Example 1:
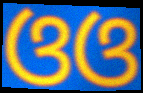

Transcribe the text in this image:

ଓଓ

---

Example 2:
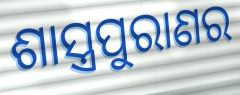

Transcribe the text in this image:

ଶାସ୍ତ୍ରପୁରାଣର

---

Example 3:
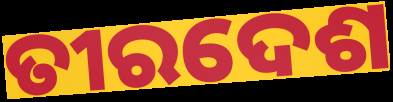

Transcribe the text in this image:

ତୀରଦେଶ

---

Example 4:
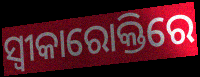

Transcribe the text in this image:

ସ୍ଵୀକାରୋକ୍ତିରେ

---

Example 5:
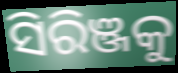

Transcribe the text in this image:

ସିରିଞ୍ଜକୁ